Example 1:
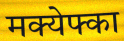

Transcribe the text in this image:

मक्येफ्का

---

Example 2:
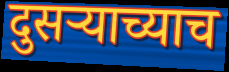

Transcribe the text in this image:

दुसऱ्याच्याच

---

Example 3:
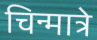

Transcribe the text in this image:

चिन्मात्रे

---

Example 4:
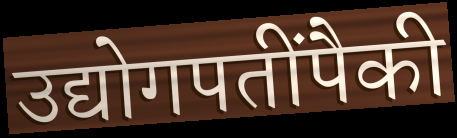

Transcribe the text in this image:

उद्योगपतींपैकी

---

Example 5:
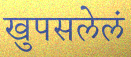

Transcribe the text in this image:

खुपसलेलं